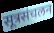
सूत्रसंचलन